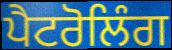
ਪੈਟਰੋਲਿੰਗ